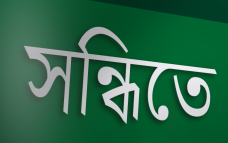
সন্ধিতে